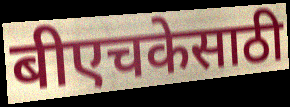
बीएचकेसाठी